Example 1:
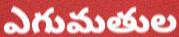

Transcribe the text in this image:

ఎగుమతుల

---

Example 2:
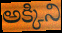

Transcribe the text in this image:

అక్కిని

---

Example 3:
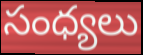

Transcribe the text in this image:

సంధ్యలు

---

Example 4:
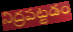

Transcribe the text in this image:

నిద్రపట్టడం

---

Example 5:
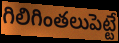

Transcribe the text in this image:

గిలిగింతలుపెట్టే